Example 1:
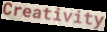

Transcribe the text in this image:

Creativity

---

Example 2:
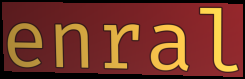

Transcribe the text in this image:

enral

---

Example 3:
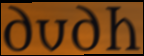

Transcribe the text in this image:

dudh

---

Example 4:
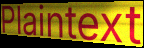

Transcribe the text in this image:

Plaintext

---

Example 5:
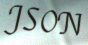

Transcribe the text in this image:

JSON